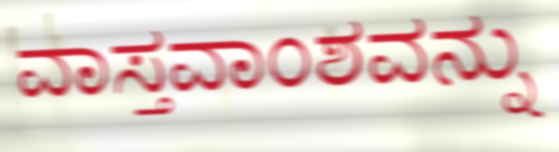
ವಾಸ್ತವಾಂಶವನ್ನು